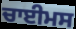
ਚਾਈਮਸ